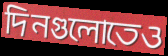
দিনগুলোতেও